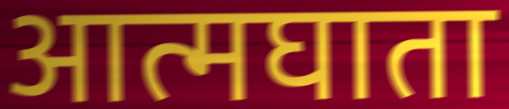
आत्मघाता